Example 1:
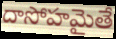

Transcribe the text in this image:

దాసోహమైతే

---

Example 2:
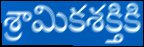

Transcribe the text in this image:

శ్రామికశక్తికి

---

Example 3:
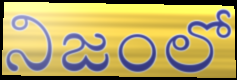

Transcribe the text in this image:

నిజంలో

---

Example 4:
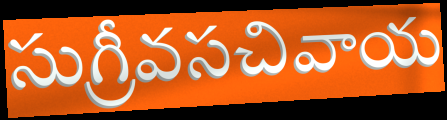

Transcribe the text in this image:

సుగ్రీవసచివాయ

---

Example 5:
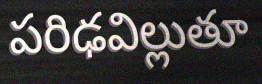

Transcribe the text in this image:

పరిఢవిల్లుతూ